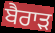
ਬੈਰਾੜ